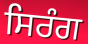
ਸਿਰੰਗ